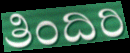
ತಿಂದಿರಿ